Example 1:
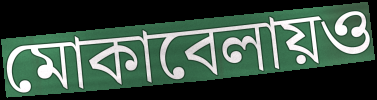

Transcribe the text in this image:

মোকাবেলায়ও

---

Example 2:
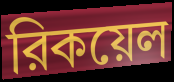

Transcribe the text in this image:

রিকয়েল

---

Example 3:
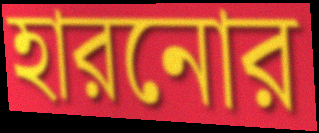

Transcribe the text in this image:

হারনোর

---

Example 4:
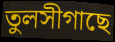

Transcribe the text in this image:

তুলসীগাছে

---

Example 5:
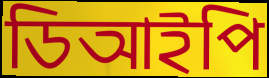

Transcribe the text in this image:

ডিআইপি